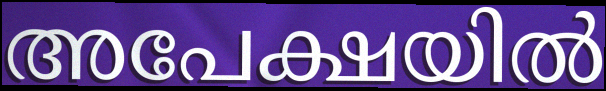
അപേക്ഷയിൽ